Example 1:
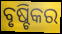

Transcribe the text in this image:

ବୃଷ୍ଚିକର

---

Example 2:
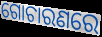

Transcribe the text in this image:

ଗୋଚାରଣରେ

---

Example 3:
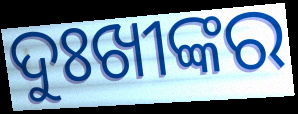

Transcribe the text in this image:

ଦୁଃଖୀଙ୍କର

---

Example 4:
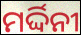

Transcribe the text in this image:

ମର୍ଦ୍ଦିନୀ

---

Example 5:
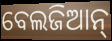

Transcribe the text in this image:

ବେଲଜିଆନ୍